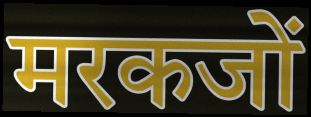
मरकजों